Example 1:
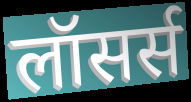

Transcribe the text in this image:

लॉसर्स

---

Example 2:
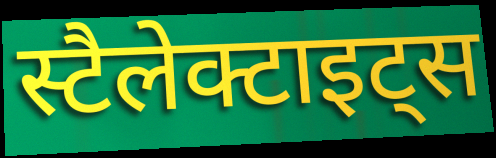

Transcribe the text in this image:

स्टैलेक्टाइट्स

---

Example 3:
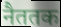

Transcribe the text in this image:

नैततक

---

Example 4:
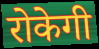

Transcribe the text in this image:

रोकेगी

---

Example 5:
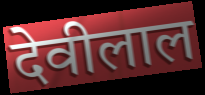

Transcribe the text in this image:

देवीलाल